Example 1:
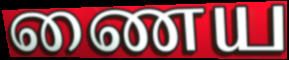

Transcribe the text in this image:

ணைய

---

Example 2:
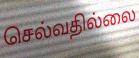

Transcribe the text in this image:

செல்வதில்லை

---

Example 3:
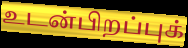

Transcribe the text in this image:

உடன்பிறப்புக்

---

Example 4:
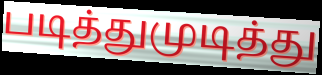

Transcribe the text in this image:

படித்துமுடித்து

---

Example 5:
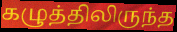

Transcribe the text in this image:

கழுத்திலிருந்த